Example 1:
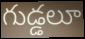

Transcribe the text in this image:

గుడ్డలూ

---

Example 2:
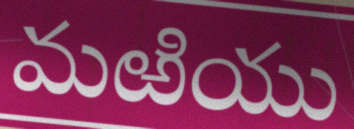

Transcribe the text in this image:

మఱియు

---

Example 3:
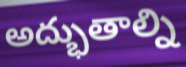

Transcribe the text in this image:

అద్భుతాల్ని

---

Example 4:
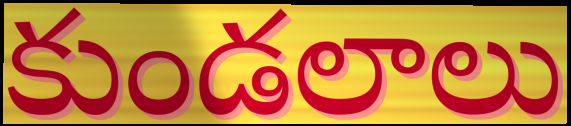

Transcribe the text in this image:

కుండలాలు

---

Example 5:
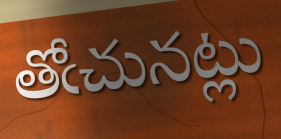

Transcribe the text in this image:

తోఁచునట్లు